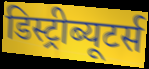
डिस्ट्रीब्यूटर्स